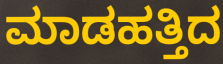
ಮಾಡಹತ್ತಿದ